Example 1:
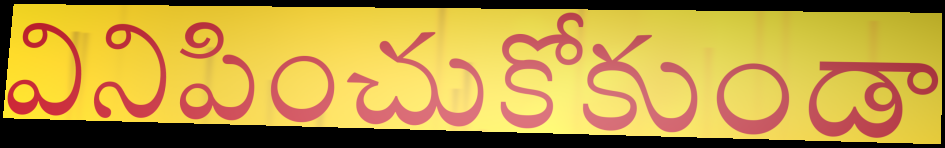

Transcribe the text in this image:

వినిపించుకోకుండా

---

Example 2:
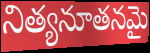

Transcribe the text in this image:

నిత్యనూతనమై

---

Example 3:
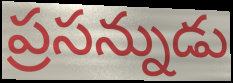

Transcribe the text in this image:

ప్రసన్నుడు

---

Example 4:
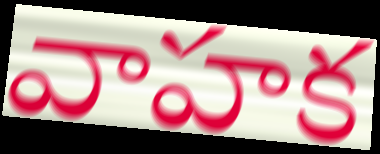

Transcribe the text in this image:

వాహక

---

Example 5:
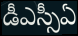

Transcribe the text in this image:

డీఎస్సీఏ